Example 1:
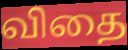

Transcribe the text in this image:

விதை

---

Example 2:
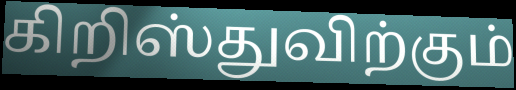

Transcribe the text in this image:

கிறிஸ்துவிற்கும்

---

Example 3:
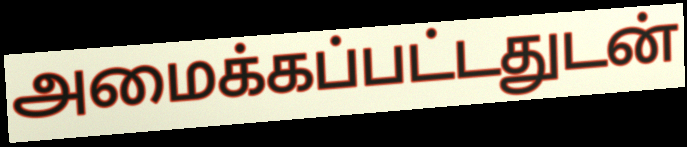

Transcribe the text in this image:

அமைக்கப்பட்டதுடன்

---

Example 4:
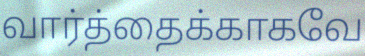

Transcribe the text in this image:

வார்த்தைக்காகவே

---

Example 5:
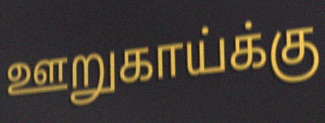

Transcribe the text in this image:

ஊறுகாய்க்கு